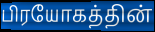
பிரயோகத்தின்